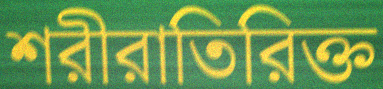
শরীরাতিরিক্ত